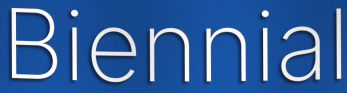
Biennial